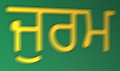
ਜੁਰਮ